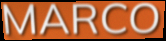
MARCO